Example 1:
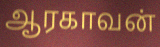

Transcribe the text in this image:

ஆரகாவன்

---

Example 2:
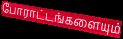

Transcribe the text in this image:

போராட்டங்களையும்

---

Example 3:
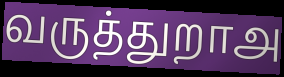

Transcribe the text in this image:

வருத்துறாஅ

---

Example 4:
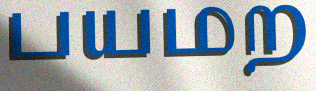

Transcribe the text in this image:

பயமற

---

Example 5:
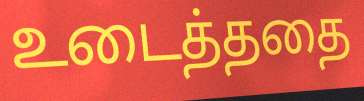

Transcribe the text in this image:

உடைத்ததை